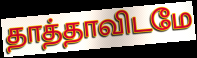
தாத்தாவிடமே